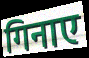
गिनाए